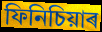
ফিনিচিয়াৰ